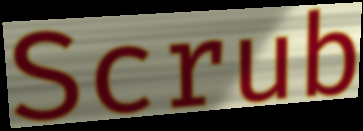
Scrub